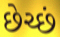
છેચ્છં